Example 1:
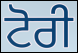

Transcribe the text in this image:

ਟੋਰੀ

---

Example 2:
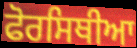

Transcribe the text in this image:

ਫੋਰਸਿਥੀਆ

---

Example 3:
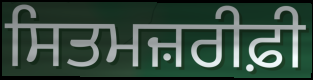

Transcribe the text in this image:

ਸਿਤਮਜ਼ਰੀਫ਼ੀ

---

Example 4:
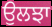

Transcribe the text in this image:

ਉਲਝਾ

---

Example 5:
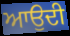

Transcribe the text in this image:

ਆਉਦੀ